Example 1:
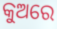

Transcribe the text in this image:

କୁଅରେ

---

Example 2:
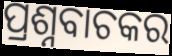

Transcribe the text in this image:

ପ୍ରଶ୍ନବାଚକର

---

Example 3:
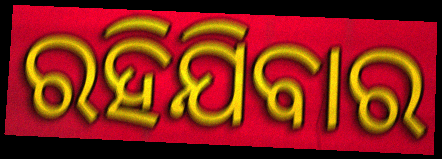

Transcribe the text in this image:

ରହିଯିବାର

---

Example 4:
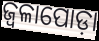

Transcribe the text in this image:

ଜ୍ୱଳାପୋଡ଼ା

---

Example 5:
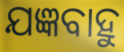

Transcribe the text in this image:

ଯଜ୍ଞବାହୁ